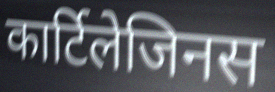
कार्टिलेजिनस